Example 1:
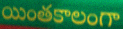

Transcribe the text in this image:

యింతకాలంగా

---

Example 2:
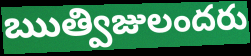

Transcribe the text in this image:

ఋత్విజులందరు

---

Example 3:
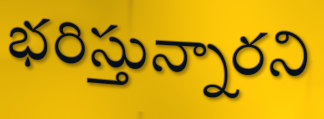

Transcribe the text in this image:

భరిస్తున్నారని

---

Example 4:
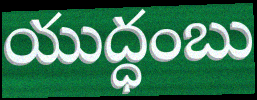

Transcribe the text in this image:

యుద్ధంబు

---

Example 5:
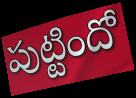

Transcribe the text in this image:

పుట్టిందో